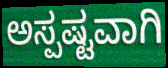
ಅಸ್ಪಷ್ಟವಾಗಿ